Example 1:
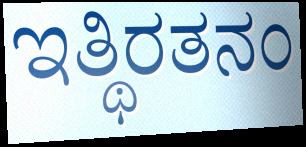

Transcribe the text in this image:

ಇತ್ಥಿರತನಂ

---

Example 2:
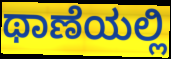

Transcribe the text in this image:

ಥಾಣೆಯಲ್ಲಿ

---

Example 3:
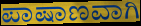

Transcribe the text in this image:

ಪಾಷಾಣವಾಗಿ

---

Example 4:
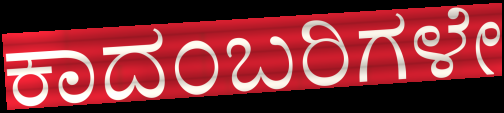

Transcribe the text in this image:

ಕಾದಂಬರಿಗಳೇ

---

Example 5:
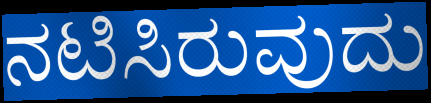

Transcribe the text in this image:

ನಟಿಸಿರುವುದು